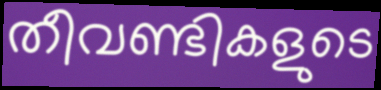
തീവണ്ടികളുടെ